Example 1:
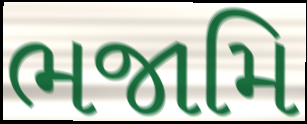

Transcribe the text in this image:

ભજામિ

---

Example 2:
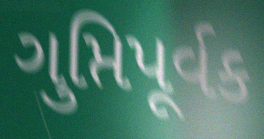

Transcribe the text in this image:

ગુપ્તિપૂર્વક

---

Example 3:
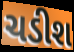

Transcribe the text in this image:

ચડીશ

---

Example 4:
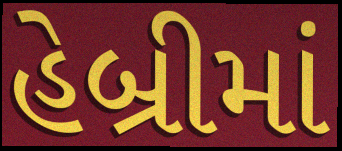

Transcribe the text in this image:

હેબ્રીમાં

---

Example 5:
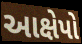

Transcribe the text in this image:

આક્ષેપો